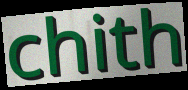
chith